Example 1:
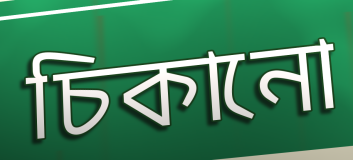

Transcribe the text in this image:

চিকানো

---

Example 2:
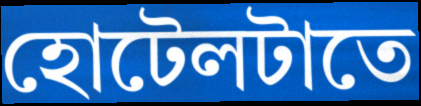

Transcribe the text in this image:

হোটেলটাতে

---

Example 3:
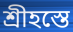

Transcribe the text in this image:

শ্রীহস্তে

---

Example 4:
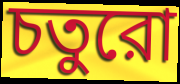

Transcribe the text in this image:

চতুরো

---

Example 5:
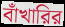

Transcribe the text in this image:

বাঁখারির